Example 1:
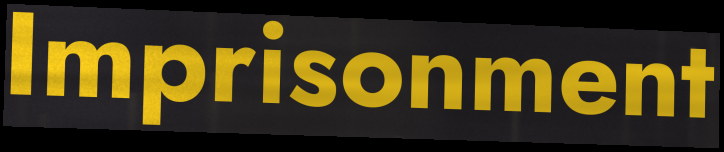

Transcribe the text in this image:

Imprisonment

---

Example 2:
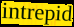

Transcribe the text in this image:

intrepid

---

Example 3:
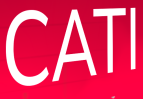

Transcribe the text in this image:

CATI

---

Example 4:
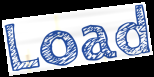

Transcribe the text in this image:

Load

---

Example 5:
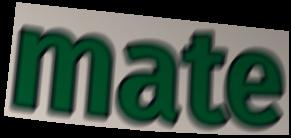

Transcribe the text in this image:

mate